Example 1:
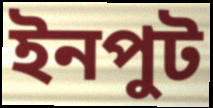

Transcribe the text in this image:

ইনপুট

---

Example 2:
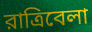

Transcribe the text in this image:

রাত্রিবেলা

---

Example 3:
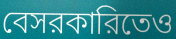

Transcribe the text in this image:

বেসরকারিতেও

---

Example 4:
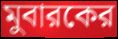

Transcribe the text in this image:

মুবারকের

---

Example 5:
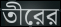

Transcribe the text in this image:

তীরের